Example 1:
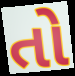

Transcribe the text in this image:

તો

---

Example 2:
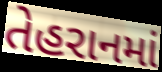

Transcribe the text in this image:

તેહરાનમાં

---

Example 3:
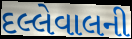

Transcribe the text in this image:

દલ્લેવાલની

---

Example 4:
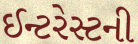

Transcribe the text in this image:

ઈન્ટરેસ્ટની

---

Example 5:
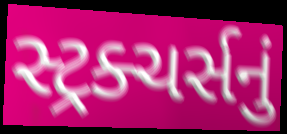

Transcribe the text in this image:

સ્ટ્રક્ચર્સનું